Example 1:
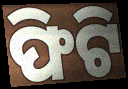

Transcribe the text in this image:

ଫିଟି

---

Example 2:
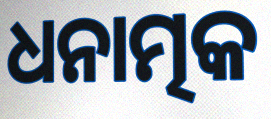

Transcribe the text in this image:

ଧନାତ୍ମକ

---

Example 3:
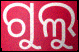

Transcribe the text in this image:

ଗୁଲୁ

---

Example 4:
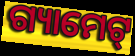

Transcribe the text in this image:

ଗ୍ୟାମେଟ୍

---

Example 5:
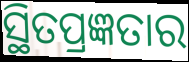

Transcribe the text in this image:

ସ୍ଥିତପ୍ରଜ୍ଞତାର